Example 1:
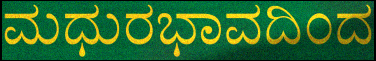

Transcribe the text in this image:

ಮಧುರಭಾವದಿಂದ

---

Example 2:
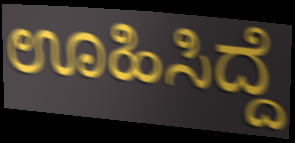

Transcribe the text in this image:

ಊಹಿಸಿದ್ದೆ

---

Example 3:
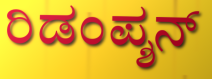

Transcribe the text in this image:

ರಿಡಂಪ್ಶನ್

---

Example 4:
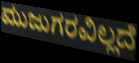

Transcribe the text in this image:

ಮುಜುಗರವಿಲ್ಲದೆ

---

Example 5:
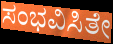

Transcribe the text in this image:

ಸಂಭವಿಸಿತೇ